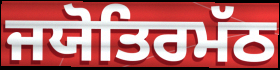
ਜਯੋਤਿਰਮੱਠ